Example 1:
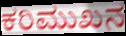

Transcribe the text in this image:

ಕರಿಮುಖನ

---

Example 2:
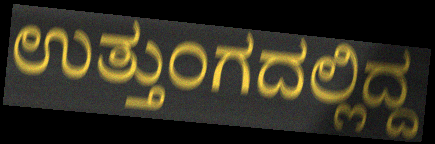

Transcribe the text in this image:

ಉತ್ತುಂಗದಲ್ಲಿದ್ದ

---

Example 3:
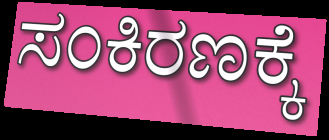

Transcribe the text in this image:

ಸಂಕಿರಣಕ್ಕೆ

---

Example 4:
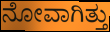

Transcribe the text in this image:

ನೋವಾಗಿತ್ತು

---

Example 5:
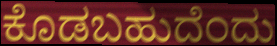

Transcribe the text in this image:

ಕೊಡಬಹುದೆಂದು